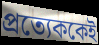
প্রত্যেককেই